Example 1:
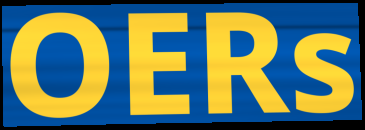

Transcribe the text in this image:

OERs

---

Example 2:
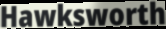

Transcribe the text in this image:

Hawksworth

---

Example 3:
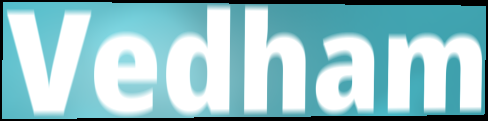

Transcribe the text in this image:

Vedham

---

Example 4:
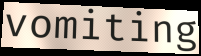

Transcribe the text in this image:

vomiting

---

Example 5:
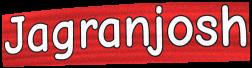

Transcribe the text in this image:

Jagranjosh